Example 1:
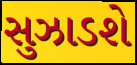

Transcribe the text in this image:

સુઝાડશે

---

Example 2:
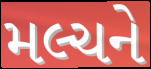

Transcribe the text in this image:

મલ્ચને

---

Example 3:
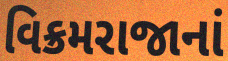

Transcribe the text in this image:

વિક્રમરાજાનાં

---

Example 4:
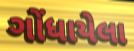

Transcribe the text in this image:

ગોંધાયેલા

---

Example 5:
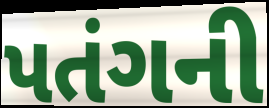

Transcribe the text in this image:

પતંગની